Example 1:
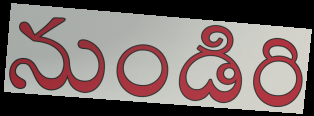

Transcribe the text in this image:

నుండిరి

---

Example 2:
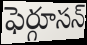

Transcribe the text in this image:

ఫెర్గూసన్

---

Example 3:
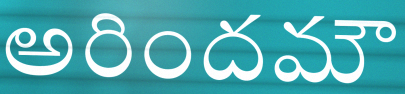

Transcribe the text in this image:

అరిందమౌ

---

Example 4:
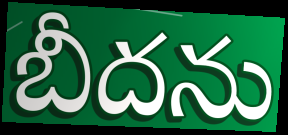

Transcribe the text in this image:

బీదను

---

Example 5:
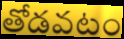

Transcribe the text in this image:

తోడవటం